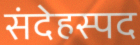
संदेहस्पद